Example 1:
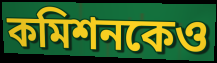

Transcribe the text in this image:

কমিশনকেও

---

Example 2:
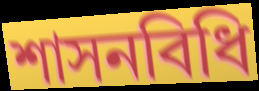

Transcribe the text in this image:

শাসনবিধি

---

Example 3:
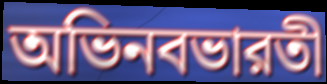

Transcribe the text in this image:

অভিনবভারতী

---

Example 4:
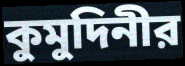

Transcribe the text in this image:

কুমুদিনীর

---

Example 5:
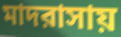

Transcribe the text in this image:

মাদরাসায়